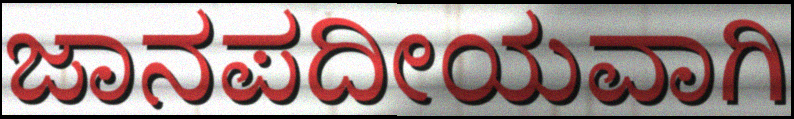
ಜಾನಪದೀಯವಾಗಿ